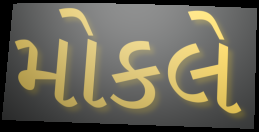
મોકલે